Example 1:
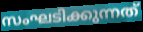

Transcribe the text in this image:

സംഘടിക്കുന്നത്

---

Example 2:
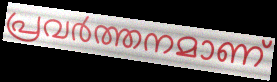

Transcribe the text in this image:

പ്രവർത്തനമാണ്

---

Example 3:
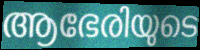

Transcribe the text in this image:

ആഭേരിയുടെ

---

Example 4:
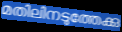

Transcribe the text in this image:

മതിലിനടുത്തേക്കു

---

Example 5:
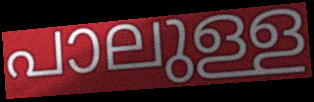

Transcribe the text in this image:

പാലുള്ള